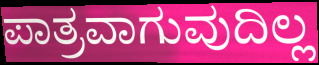
ಪಾತ್ರವಾಗುವುದಿಲ್ಲ